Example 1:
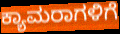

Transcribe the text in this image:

ಕ್ಯಾಮರಾಗಳಿಗೆ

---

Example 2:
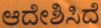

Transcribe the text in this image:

ಆದೇಶಿಸಿದೆ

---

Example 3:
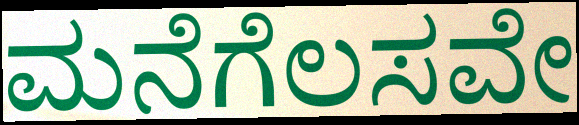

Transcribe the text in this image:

ಮನೆಗೆಲಸವೇ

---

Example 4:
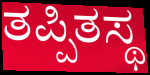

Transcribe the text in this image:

ತಪ್ಪಿತಸ್ಥ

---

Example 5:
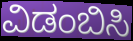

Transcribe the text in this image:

ವಿಡಂಬಿಸಿ